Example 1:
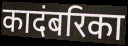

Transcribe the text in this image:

कादंबरिका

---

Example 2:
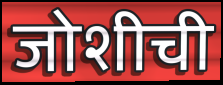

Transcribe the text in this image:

जोशीची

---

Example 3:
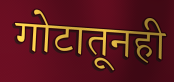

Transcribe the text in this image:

गोटातूनही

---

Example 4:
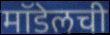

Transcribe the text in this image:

मॉडेलची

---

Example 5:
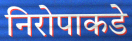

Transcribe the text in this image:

निरोपाकडे